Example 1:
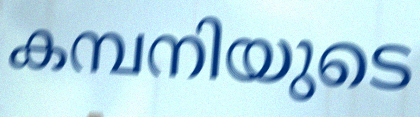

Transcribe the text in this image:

കമ്പനിയുടെ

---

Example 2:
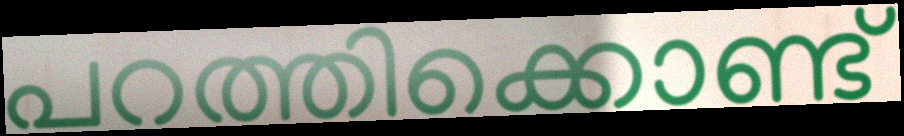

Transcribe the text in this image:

പറത്തിക്കൊണ്ട്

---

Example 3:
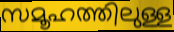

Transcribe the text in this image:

സമൂഹത്തിലുള്ള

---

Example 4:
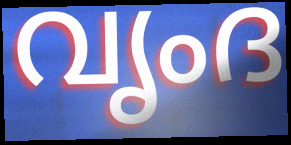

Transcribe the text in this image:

വൃംദ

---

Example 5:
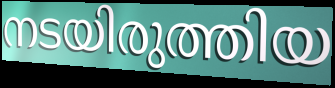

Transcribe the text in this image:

നടയിരുത്തിയ